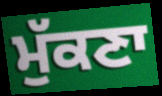
ਮੁੱਕਣਾ